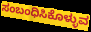
ಸಂಬಂಧಿಸಿಕೊಳ್ಳುವ